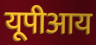
यूपीआय